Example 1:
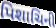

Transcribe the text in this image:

પિશાચિની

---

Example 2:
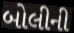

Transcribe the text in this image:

બોલીની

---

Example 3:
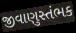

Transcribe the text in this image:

જીવાણુસ્તંભક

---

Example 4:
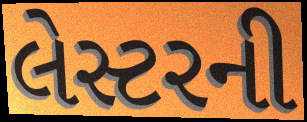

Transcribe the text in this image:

લેસ્ટરની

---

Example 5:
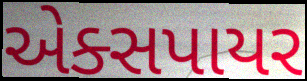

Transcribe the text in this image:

એક્સપાયર